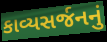
કાવ્યસર્જનનું